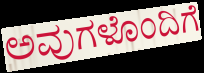
ಅವುಗಳೊಂದಿಗೆ